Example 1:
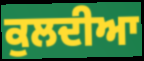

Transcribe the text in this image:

ਕੁਲਦੀਆ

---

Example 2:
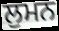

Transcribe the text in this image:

ਲੁਮਨ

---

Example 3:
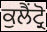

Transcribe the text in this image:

ਕੁਲੈਂਟ੍ਰੋ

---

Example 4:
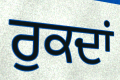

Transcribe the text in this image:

ਰੁਕਦਾਂ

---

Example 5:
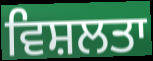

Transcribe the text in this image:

ਵਿਸ਼ਲਤਾ